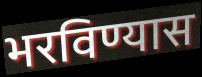
भरविण्यास